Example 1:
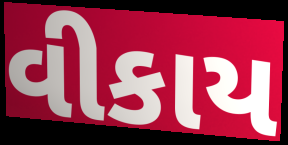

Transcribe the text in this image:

વીકાય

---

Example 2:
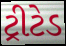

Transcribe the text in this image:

ટ્રીટેડ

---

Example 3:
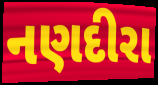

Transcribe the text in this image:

નણદીરા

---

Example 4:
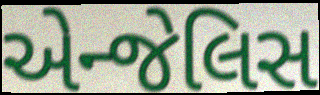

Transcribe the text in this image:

એન્જેલિસ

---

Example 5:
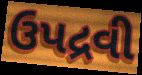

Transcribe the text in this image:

ઉપદ્રવી